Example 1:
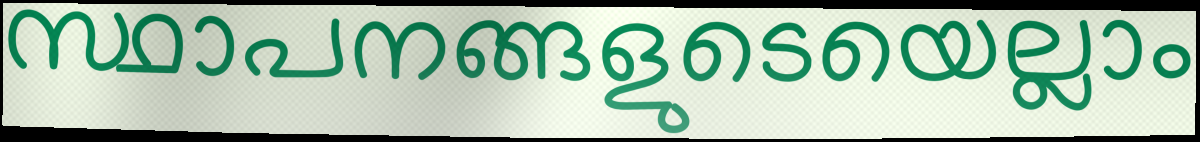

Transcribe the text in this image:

സ്ഥാപനങ്ങളുടെയെല്ലാം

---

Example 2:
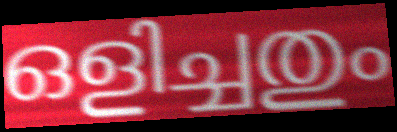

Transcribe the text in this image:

ഒളിച്ചതും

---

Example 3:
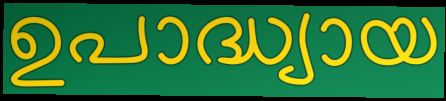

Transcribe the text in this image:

ഉപാദ്ധ്യായ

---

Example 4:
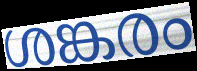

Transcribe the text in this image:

ശങ്കരം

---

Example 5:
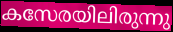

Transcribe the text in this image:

കസേരയിലിരുന്നു